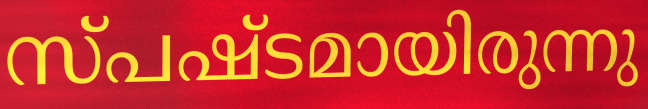
സ്പഷ്ടമായിരുന്നു